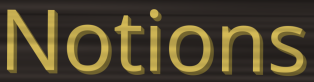
Notions